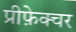
प्रीफ़ेक्चर